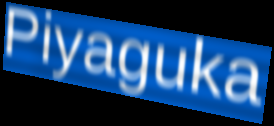
Piyaguka